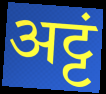
अट्टं